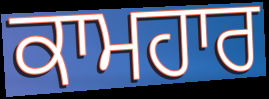
ਕਾਮਹਾਰ